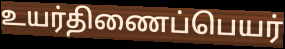
உயர்திணைப்பெயர்